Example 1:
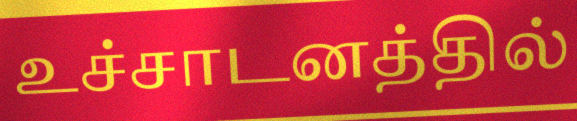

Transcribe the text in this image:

உச்சாடனத்தில்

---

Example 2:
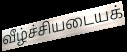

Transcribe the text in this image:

வீழ்ச்சியடையக்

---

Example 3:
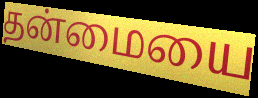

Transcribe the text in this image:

தன்மையை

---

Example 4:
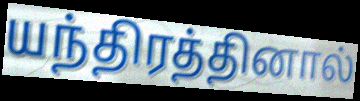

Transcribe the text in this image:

யந்திரத்தினால்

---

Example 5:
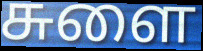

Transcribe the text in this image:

சுளை